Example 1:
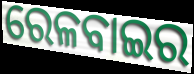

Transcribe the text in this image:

ରେଳବାଇର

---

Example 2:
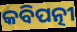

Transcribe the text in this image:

କବିପତ୍ନୀ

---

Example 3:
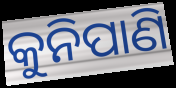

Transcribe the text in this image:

କୁନିପାଣି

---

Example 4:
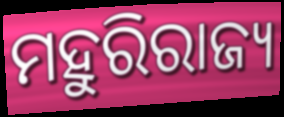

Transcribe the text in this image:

ମହୁରିରାଜ୍ୟ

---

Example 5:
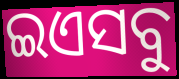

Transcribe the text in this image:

ଇଏସବୁ